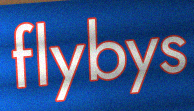
flybys